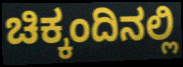
ಚಿಕ್ಕಂದಿನಲ್ಲಿ